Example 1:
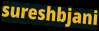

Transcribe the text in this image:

sureshbjani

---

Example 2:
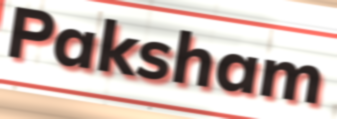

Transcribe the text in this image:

Paksham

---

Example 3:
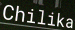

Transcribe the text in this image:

Chilika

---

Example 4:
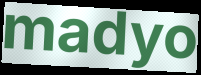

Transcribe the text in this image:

madyo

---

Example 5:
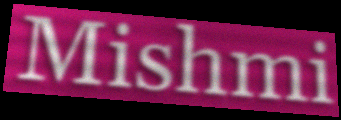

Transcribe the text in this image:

Mishmi